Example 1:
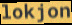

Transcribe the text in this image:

lokjon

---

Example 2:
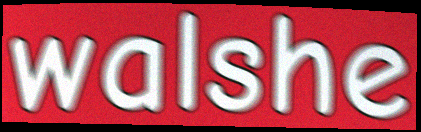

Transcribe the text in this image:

walshe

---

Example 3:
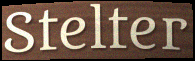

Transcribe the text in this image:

Stelter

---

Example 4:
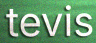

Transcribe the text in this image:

tevis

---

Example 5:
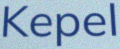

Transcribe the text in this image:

Kepel